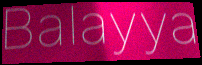
Balayya